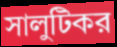
সালুটিকর